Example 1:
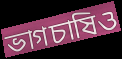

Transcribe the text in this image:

ভাগচাষিও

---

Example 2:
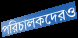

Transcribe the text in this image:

পরিচালকদেরও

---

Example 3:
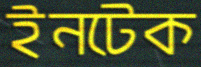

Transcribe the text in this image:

ইনটেক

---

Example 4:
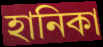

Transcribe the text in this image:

হানিকা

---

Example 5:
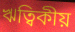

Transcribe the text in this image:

ঋত্বিকীয়